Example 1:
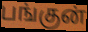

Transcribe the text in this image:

பங்குன்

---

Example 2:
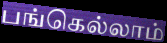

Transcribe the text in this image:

பங்கெல்லாம்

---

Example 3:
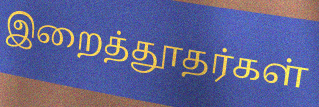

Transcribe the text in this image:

இறைத்தூதர்கள்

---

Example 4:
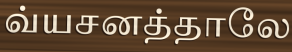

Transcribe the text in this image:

வ்யசனத்தாலே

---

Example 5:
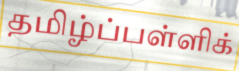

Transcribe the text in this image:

தமிழ்ப்பள்ளிக்